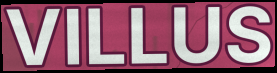
VILLUS